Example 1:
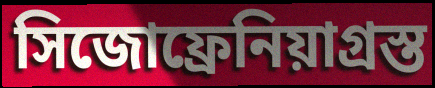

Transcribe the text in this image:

সিজোফ্রেনিয়াগ্রস্ত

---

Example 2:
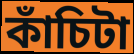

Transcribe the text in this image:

কাঁচিটা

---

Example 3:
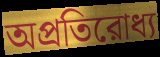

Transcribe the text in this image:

অপ্রতিরোধ্য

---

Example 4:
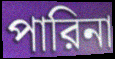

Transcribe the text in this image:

পারিনা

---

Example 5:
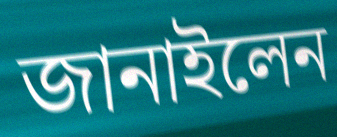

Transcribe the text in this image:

জানাইলেন